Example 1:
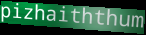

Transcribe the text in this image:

pizhaiththum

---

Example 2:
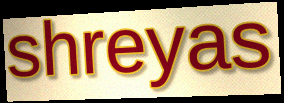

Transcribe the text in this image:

shreyas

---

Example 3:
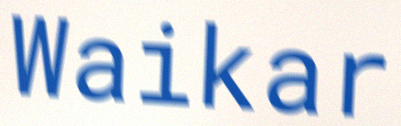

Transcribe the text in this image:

Waikar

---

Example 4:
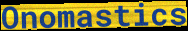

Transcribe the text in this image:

Onomastics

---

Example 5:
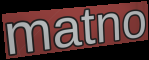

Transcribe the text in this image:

matno